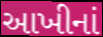
આખીનાં